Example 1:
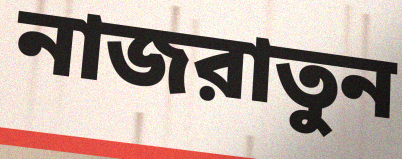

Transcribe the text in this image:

নাজরাতুন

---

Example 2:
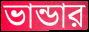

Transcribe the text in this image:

ভান্ডার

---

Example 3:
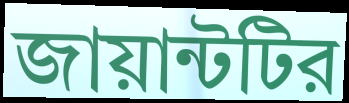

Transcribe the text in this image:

জায়ান্টটির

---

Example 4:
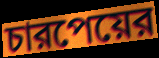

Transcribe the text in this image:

চারপেয়ের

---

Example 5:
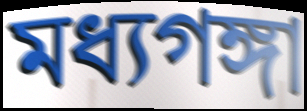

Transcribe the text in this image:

মধ্যগঙ্গা